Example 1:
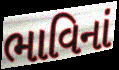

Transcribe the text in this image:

ભાવિનાં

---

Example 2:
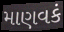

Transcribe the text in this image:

માણવકં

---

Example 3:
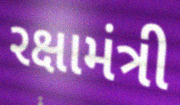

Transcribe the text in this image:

રક્ષામંત્રી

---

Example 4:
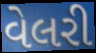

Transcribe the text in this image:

વેલરી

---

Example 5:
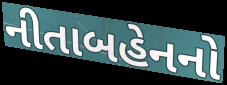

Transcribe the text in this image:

નીતાબહેનનો